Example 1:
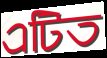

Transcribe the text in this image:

এটিত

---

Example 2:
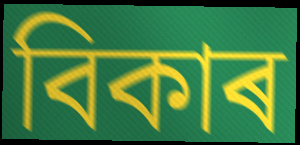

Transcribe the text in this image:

বিকাৰ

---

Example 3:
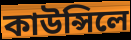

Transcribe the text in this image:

কাউন্সিলে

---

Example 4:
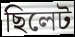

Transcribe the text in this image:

ছিলেট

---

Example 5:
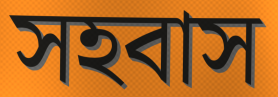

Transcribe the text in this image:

সহবাস